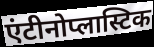
एंटीनोप्लास्टिक